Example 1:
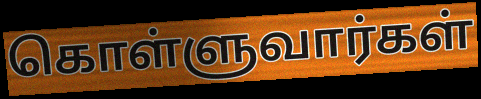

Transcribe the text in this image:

கொள்ளுவார்கள்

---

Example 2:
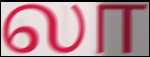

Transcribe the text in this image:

லா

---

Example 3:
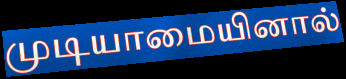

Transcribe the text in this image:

முடியாமையினால்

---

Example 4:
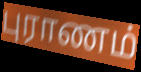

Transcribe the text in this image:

புராணம்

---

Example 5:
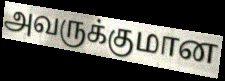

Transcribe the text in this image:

அவருக்குமான